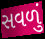
સવળું